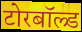
टोरबॉल्ड